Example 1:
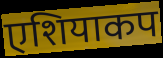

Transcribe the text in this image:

एशियाकप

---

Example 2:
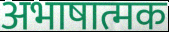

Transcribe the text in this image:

अभाषात्मक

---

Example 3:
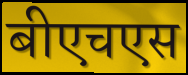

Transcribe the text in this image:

बीएचएस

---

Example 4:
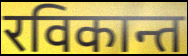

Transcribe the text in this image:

रविकान्त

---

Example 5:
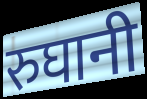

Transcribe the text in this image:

रुघानी